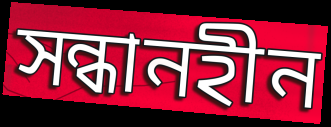
সন্ধানহীন